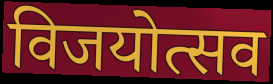
विजयोत्सव